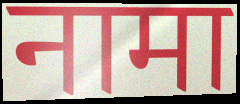
नामा